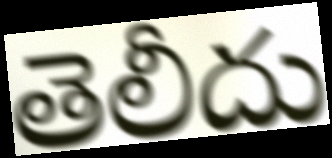
తెలీదు